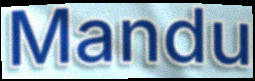
Mandu